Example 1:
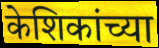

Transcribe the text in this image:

केशिकांच्या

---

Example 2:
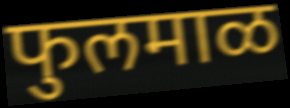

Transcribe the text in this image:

फुलमाळ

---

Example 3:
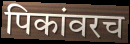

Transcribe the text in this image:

पिकांवरच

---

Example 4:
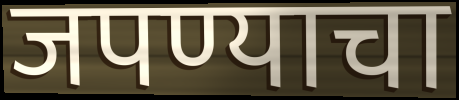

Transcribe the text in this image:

जपण्याचा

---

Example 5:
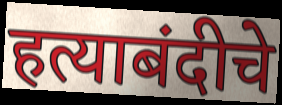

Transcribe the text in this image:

हत्याबंदीचे